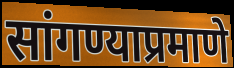
सांगण्याप्रमाणे